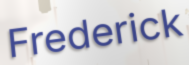
Frederick